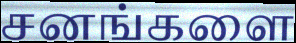
சனங்களை